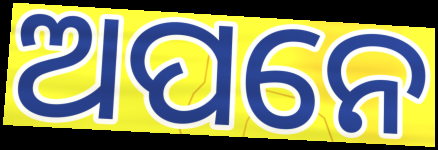
ଅପନେ